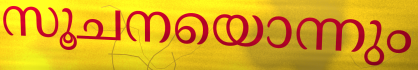
സൂചനയൊന്നും